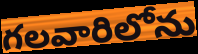
గలవారిలోను